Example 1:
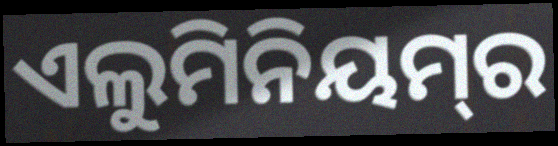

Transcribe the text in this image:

ଏଲୁମିନିୟମ୍‌ର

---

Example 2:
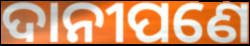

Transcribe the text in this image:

ଦାନୀପଣେ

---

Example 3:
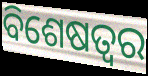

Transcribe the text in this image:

ବିଶେଷତ୍ବର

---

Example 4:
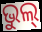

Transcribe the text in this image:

ଭୁଲ୍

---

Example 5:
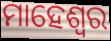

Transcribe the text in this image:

ମାହେଶ୍ଵର